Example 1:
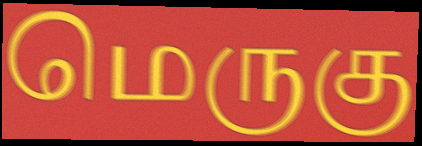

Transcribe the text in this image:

மெருகு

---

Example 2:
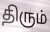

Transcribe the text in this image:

திரும்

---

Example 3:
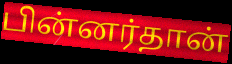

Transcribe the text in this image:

பின்னர்தான்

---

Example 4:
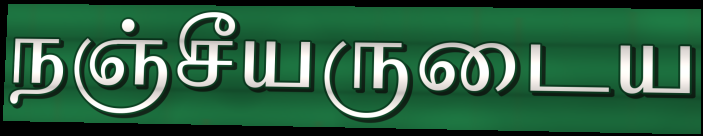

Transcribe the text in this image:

நஞ்சீயருடைய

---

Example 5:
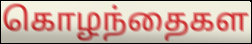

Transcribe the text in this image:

கொழந்தைகள